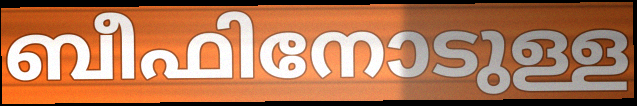
ബീഫിനോടുള്ള